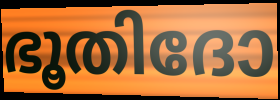
ഭൂതിദോ